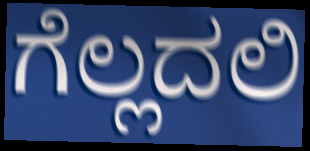
ಗೆಲ್ಲದಲಿ